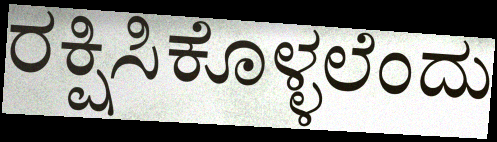
ರಕ್ಷಿಸಿಕೊಳ್ಳಲೆಂದು